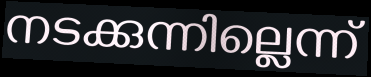
നടക്കുന്നില്ലെന്ന്